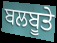
ਬਲਬੂਤੇ